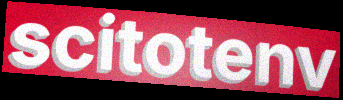
scitotenv